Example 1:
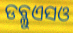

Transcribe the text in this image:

ଡବ୍ଲୁଏସଓ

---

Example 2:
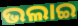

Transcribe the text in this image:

ଭଲାଇ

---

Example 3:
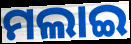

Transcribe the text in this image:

ମଲାଇ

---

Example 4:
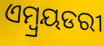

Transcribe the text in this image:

ଏମ୍ବ୍ରୟଡରୀ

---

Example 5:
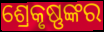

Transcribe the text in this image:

ଶ୍ରେକୃଷ୍ଣଙ୍କର